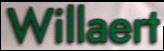
Willaert